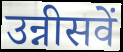
उन्नीसवें